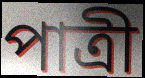
পাত্ৰী